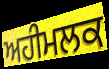
ਅਹੀਮਲਕ